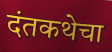
दंतकथेचा